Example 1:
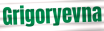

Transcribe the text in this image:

Grigoryevna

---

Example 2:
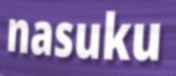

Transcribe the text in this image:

nasuku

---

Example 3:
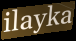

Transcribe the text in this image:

ilayka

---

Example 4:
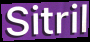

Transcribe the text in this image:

Sitril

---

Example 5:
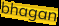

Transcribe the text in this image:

bhagan